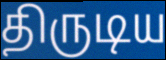
திருடிய